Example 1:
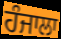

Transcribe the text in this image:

ਹੰਜਾਲਾ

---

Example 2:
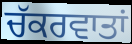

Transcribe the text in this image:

ਚੱਕਰਵਾਤਾਂ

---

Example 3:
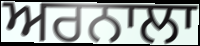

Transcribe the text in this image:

ਅਰਨਾਲਾ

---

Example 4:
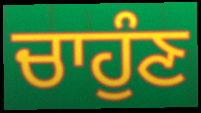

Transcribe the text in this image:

ਚਾਹੁੰਣ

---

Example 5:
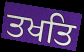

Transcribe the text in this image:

ਤਖਤਿ